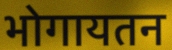
भोगायतन